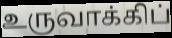
உருவாக்கிப்